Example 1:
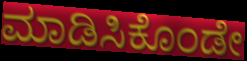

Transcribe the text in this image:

ಮಾಡಿಸಿಕೊಂಡೇ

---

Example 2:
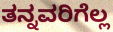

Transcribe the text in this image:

ತನ್ನವರಿಗೆಲ್ಲ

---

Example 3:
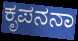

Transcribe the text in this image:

ಕೃಪನನಾ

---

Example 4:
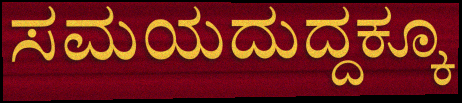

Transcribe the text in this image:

ಸಮಯದುದ್ದಕ್ಕೂ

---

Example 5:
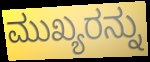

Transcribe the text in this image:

ಮುಖ್ಯರನ್ನು